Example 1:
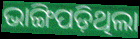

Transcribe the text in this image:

ଭାଙ୍ଗିପଡ଼ିଥିଲା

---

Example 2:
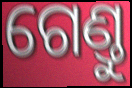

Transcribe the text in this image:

ଗେଣ୍ତୁ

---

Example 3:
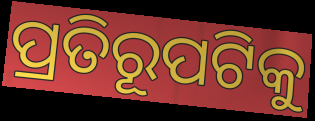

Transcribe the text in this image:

ପ୍ରତିରୂପଟିକୁ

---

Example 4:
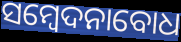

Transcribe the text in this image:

ସମ୍ବେଦନାବୋଧ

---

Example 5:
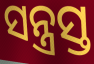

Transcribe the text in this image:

ସନ୍ତ୍ରସ୍ତ